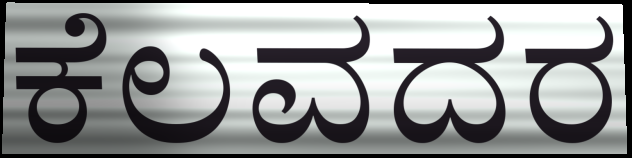
ಕೆಲವದರ